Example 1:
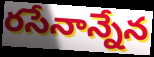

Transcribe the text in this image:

రసేనాన్నేన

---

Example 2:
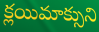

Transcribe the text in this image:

క్లయిమాక్సుని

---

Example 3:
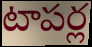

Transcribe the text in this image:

టాపర్ల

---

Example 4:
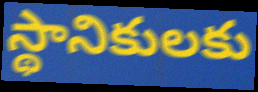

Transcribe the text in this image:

స్థానికులకు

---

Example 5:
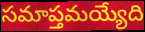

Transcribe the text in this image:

సమాప్తమయ్యేది